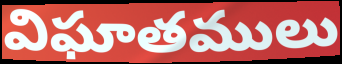
విఘాతములు